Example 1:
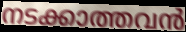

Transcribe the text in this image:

നടക്കാത്തവൻ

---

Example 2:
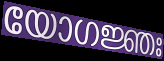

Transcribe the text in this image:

യോഗജ്ഞഃ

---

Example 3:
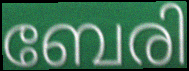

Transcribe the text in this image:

ബേരി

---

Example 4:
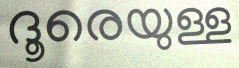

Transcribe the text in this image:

ദൂരെയുള്ള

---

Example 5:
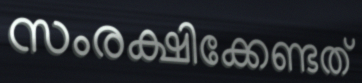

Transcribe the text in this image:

സംരക്ഷിക്കേണ്ടത്